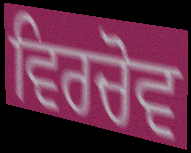
ਵਿਰਚੋਵ